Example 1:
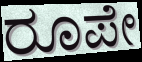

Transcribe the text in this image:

ರೂಪೇ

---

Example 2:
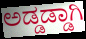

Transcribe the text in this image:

ಅಡ್ಡಡ್ಡಾಗಿ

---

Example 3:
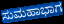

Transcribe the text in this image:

ಸುಮಹಾಭಾಗ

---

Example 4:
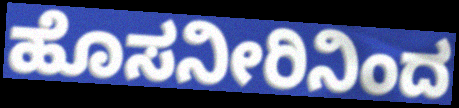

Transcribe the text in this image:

ಹೊಸನೀರಿನಿಂದ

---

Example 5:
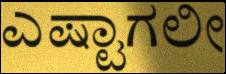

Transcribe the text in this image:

ಎಷ್ಟಾಗಲೀ